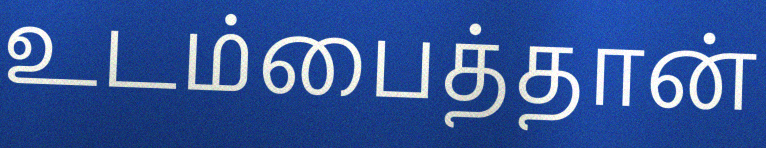
உடம்பைத்தான்